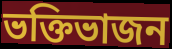
ভক্তিভাজন